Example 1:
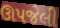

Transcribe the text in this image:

ઊપજેલી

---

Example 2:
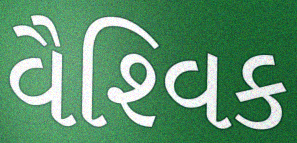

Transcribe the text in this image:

વૈશ્‍વિક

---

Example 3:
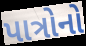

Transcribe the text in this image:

પાત્રોનો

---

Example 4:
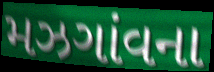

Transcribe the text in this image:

મઝગાંવના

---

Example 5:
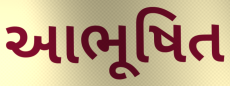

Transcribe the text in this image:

આભૂષિત